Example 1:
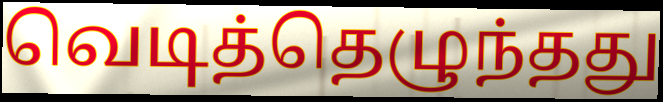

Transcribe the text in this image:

வெடித்தெழுந்தது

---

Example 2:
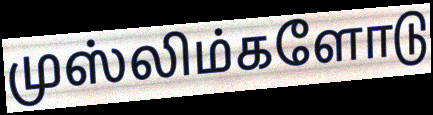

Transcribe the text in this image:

முஸ்லிம்களோடு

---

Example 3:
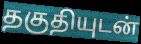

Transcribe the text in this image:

தகுதியுடன்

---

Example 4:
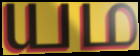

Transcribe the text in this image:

யம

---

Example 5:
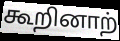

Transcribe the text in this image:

கூறினாற்